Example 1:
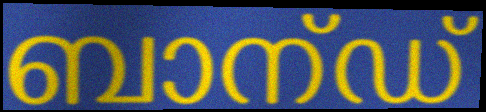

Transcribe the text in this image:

ബാന്ഡ്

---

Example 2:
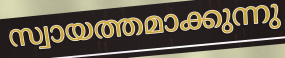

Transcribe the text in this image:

സ്വായത്തമാക്കുന്നു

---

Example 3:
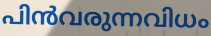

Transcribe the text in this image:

പിൻവരുന്നവിധം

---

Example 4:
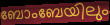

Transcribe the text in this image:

ബോംബേയിലും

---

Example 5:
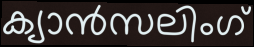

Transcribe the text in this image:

ക്യാൻസലിംഗ്